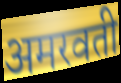
अमरवती